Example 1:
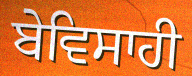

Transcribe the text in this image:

ਬੇਵਿਸਾਹੀ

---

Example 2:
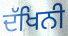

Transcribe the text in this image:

ਦੱਖਿਨੀ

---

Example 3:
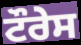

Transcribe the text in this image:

ਟੌਰੇਸ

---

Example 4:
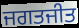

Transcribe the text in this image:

ਜਗਤਜੀਤ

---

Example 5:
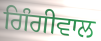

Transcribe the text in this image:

ਗਿੰਗੀਵਾਲ